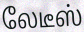
லேடீஸ்